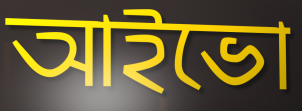
আইভো